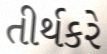
તીર્થકરે